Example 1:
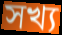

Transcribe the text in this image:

সখ্য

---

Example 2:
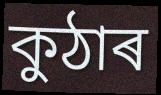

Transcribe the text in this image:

কুঠাৰ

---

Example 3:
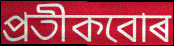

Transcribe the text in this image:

প্ৰতীকবোৰ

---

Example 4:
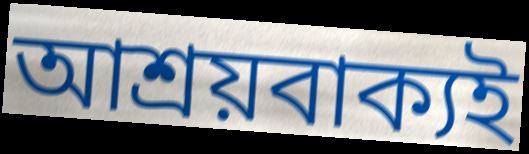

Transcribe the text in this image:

আশ্ৰয়বাক্যই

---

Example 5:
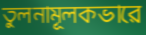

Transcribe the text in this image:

তুলনামূলকভাৱে